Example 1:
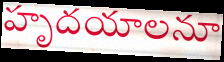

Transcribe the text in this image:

హృదయాలనూ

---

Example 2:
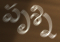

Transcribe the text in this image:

పృశ్ని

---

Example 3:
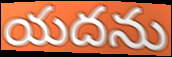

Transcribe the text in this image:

యదను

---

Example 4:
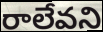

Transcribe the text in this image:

రాలేవని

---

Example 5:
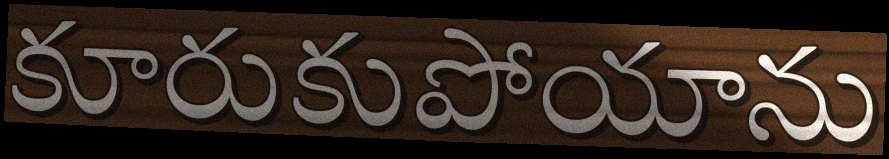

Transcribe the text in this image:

కూరుకుపోయాను